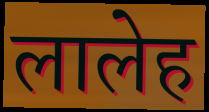
लालेह